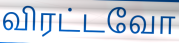
விரட்டவோ